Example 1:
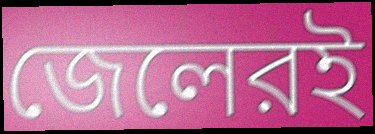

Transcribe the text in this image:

জেলেরই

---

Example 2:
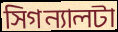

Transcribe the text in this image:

সিগন্যালটা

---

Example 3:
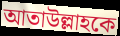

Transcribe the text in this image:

আতাউল্লাহকে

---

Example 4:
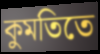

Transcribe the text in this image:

কুমতিতে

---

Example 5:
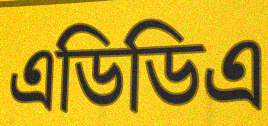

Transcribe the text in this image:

এডিডিএ